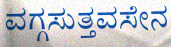
ವಗ್ಗಸುತ್ತವಸೇನ